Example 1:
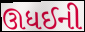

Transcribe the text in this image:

ઊધઈની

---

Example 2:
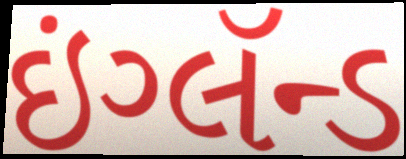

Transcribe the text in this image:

ઇંગ્લૅન્ડ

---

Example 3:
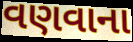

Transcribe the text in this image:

વણવાના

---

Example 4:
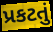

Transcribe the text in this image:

પ્રકટતું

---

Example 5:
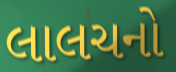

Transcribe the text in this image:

લાલચનો